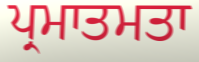
ਪ੍ਰਮਾਤਮਤਾ